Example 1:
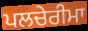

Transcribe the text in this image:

ਪਲਚੇਰੀਮਾ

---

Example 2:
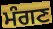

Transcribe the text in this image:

ਮੰਗਣ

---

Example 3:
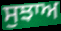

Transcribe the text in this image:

ਸੁਝਾਅ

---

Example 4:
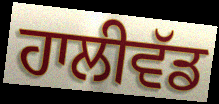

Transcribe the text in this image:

ਹਾਲੀਵੱਡ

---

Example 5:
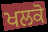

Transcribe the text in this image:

ਖਲਕੋ